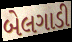
બેલગાડી